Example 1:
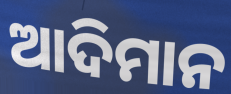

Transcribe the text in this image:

ଆଦିମାନ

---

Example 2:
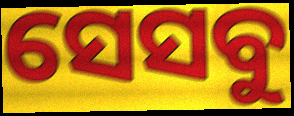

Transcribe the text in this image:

ସେସବୁ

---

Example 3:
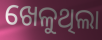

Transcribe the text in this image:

ଖେଳୁଥିଲା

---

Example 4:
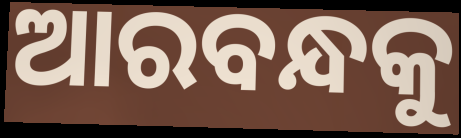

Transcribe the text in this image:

ଆରବନ୍ଧକୁ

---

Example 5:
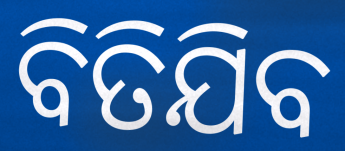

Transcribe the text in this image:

ବିତିଯିବ